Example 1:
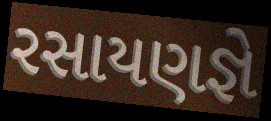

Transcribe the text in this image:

રસાયણજ્ઞે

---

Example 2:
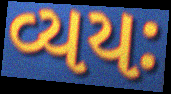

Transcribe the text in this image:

વ્યયઃ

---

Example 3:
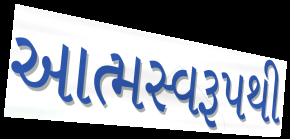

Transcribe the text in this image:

આત્મસ્વરૂપથી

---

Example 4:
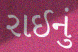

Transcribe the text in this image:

રાઈનું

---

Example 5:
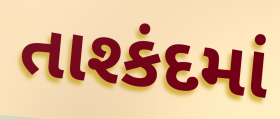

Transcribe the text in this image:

તાશ્કંદમાં